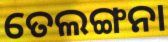
ତେଲଙ୍ଗନା